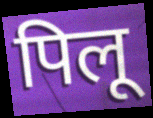
पिलू